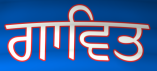
ਗਾਵਿਤ